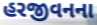
હરજીવનના